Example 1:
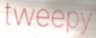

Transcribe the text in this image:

tweepy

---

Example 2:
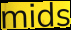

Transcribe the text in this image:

mids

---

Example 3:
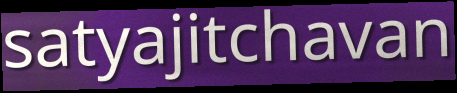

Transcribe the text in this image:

satyajitchavan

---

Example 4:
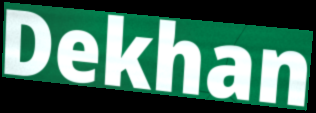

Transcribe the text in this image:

Dekhan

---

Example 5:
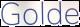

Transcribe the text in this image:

Golde